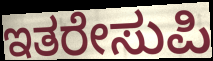
ಇತರೇಸುಪಿ